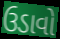
ઉડાવો